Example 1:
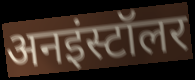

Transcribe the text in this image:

अनइंस्टॉलर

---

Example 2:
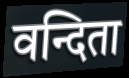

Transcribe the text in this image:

वन्दिता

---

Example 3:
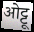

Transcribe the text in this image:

ओट्टू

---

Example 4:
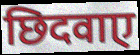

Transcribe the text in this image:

छिदवाए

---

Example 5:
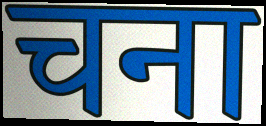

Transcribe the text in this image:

चना